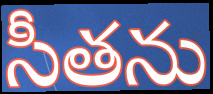
సీతను